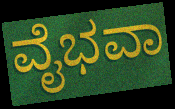
ವೈಭವಾ